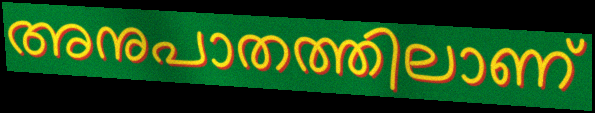
അനുപാതത്തിലാണ്